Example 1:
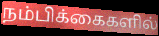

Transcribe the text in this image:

நம்பிக்கைகளில்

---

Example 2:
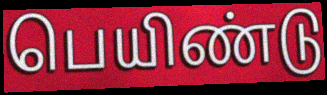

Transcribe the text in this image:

பெயிண்டு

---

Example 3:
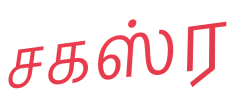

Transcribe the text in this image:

சகஸ்ர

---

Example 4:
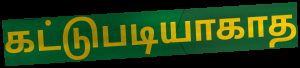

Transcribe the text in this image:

கட்டுபடியாகாத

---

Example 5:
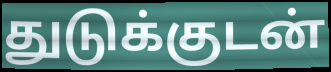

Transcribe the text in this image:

துடுக்குடன்